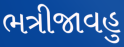
ભત્રીજાવહુ